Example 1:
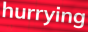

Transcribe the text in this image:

hurrying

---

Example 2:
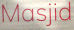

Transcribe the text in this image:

Masjid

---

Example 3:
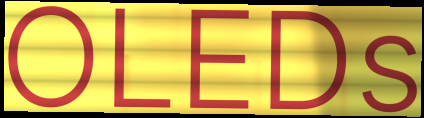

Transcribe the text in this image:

OLEDs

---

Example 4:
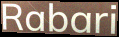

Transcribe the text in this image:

Rabari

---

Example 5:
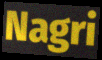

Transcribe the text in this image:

Nagri